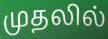
முதலில்